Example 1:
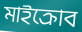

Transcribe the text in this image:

মাইক্রোব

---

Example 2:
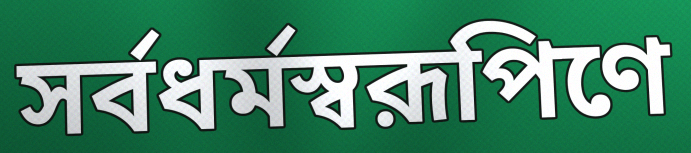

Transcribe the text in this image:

সর্বধর্মস্বরূপিণে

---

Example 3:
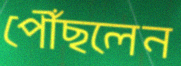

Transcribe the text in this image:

পৌঁছলেন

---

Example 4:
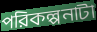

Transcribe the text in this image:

পরিকল্পনাটা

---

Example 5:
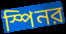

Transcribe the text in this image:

স্পিনর